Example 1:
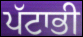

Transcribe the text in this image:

ਪੱਟਾਭੀ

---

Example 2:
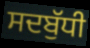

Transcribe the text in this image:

ਸਦਬੁੱਧੀ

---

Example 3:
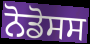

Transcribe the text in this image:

ਨੋਡੋਸਸ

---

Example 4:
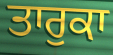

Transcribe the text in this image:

ਤਾਰੁਕਾ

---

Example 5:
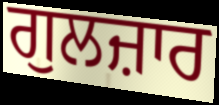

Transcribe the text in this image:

ਗੁਲਜ਼ਾਰ